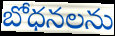
బోధనలను